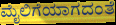
ಮೈಲಿಗೆಯಾಗದಂತೆ